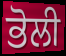
ਭੋਲੀ